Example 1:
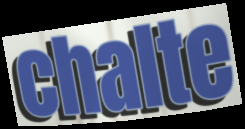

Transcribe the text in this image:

chalte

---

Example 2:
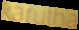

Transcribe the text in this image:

karutha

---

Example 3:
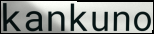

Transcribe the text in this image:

kankuno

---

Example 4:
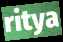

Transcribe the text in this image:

ritya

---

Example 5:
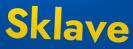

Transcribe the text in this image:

Sklave